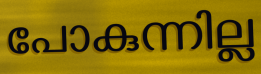
പോകുന്നില്ല